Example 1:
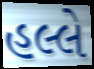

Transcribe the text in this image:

હલ્લે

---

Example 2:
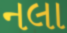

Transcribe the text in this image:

નલા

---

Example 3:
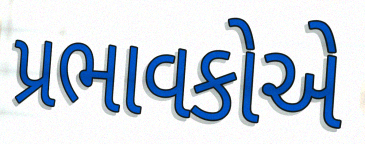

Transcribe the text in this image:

પ્રભાવકોએ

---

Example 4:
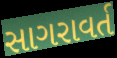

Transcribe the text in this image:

સાગરાવર્ત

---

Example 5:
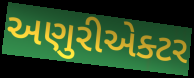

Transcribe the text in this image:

અણુરીએક્ટર